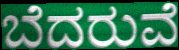
ಬೆದರುವೆ